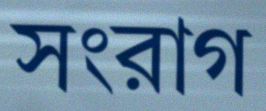
সংরাগ